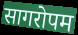
सागरोपम